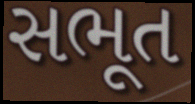
સભૂત